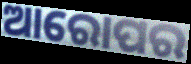
ଆରୋପର